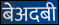
बेअदबी